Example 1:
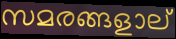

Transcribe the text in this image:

സമരങ്ങളാല്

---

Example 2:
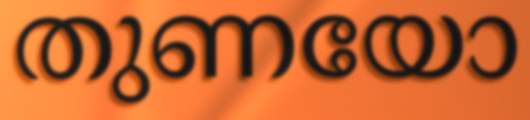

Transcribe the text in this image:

തുണയോ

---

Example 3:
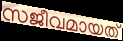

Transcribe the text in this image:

സജീവമായത്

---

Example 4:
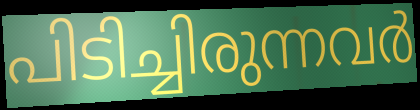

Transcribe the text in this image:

പിടിച്ചിരുന്നവർ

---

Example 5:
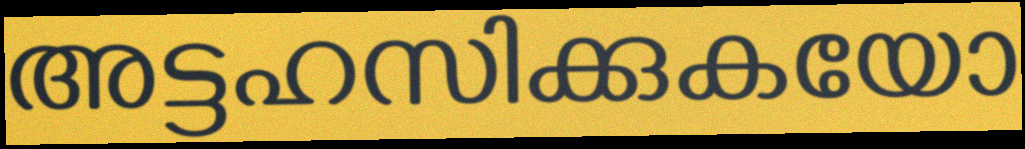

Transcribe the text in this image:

അട്ടഹസിക്കുകയോ